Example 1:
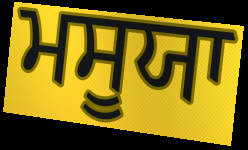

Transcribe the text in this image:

ਮਸੂਯਾ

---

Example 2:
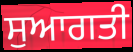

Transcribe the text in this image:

ਸੁਆਗਤੀ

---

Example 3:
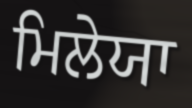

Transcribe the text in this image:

ਮਿਲੇਯਾ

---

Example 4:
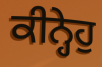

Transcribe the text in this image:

ਕੀਨ੍ਹੇਹੁ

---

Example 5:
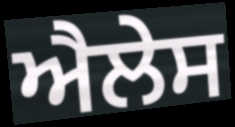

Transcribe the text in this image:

ਐਲੇਸ